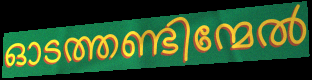
ഓടത്തണ്ടിന്മേൽ